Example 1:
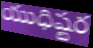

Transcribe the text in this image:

యుధిష్టర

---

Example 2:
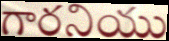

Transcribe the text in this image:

గారనియు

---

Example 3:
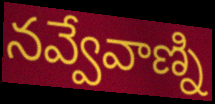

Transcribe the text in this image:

నవ్వేవాణ్ని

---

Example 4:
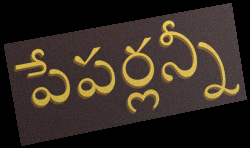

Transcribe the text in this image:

పేపర్లన్నీ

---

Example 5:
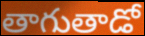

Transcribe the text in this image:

తాగుతాడో